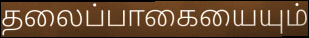
தலைப்பாகையையும்